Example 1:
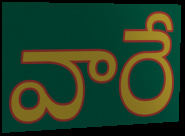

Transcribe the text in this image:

వారే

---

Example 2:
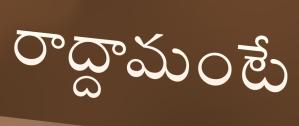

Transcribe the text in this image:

రాద్దామంటే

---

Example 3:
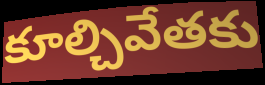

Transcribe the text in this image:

కూల్చివేతకు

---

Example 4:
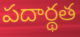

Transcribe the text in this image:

పదార్థత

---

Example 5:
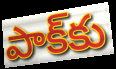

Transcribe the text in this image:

పాక్‌కు